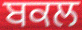
ਬਕਲ